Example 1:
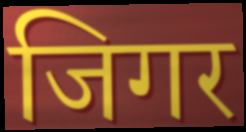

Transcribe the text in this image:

जिगर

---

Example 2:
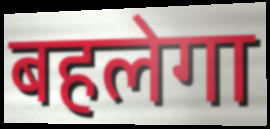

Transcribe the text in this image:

बहलेगा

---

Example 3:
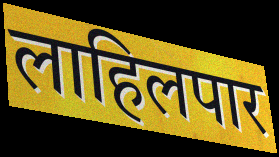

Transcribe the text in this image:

लाहिलपार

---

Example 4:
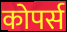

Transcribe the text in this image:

कोपर्स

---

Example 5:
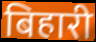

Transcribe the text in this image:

बिहारी